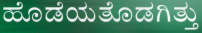
ಹೊಡೆಯತೊಡಗಿತ್ತು